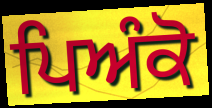
ਪਿਅੰਕੋ